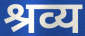
श्रव्य